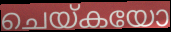
ചെയ്കയോ